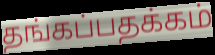
தங்கப்பதக்கம்